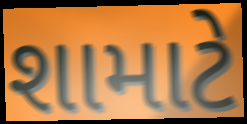
શામાટે